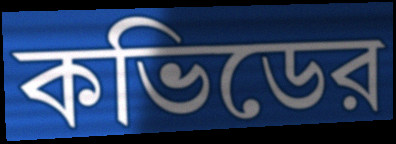
কভিডের